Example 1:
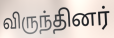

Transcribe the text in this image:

விருந்தினர்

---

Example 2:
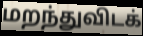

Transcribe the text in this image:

மறந்துவிடக்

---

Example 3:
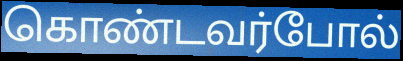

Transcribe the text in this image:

கொண்டவர்போல்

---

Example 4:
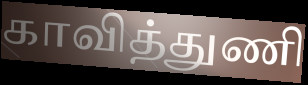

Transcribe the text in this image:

காவித்துணி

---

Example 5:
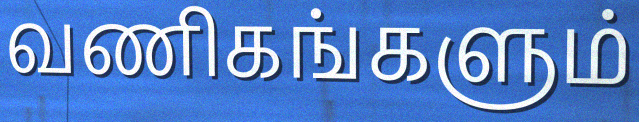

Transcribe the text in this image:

வணிகங்களும்